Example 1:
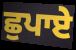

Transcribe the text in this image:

ਛੁਪਾਏ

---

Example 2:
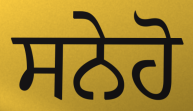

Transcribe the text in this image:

ਸਨੇਹੋ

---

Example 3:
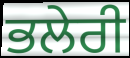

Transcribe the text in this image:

ਭਲੇਰੀ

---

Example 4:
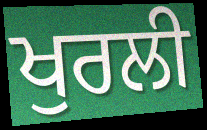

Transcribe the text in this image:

ਖੁਰਲੀ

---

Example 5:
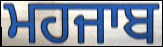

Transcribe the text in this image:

ਮਹਜਾਬ